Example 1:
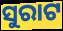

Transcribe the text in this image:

ସୁରାଟ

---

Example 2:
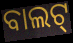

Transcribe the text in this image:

ବାଲଟ୍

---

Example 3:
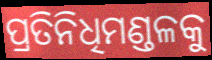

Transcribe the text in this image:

ପ୍ରତିନିଧିମଣ୍ଡଳକୁ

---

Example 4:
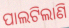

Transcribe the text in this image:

ପାଲଟିଲାଣି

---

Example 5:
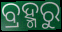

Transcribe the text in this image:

ବ୍ରହ୍ମରୁ